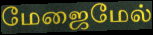
மேஜைமேல்